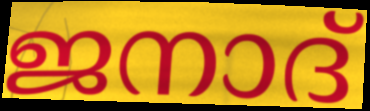
ജനാദ്